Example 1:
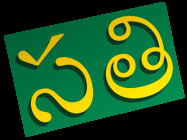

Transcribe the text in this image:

సతి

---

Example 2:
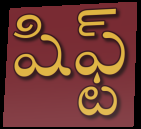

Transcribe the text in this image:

షిఫ్ట్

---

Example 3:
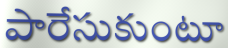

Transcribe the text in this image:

పారేసుకుంటూ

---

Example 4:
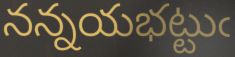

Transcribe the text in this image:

నన్నయభట్టుఁ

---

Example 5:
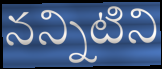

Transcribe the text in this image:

నన్నిటిని